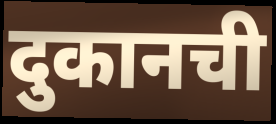
दुकानची